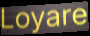
Loyare